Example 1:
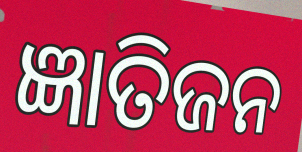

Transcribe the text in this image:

ଜ୍ଞାତିଜନ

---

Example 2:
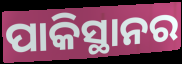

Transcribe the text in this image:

ପାକିସ୍ଥାନର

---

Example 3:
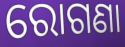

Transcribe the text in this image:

ରୋଗଣା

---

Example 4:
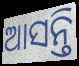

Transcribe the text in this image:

ଆସନ୍ତି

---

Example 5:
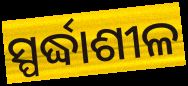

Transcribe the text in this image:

ସ୍ପର୍ଦ୍ଧାଶୀଳ